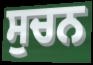
ਸੁਚਨ